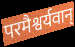
परमैश्वर्यवान्